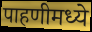
पाहणीमध्ये